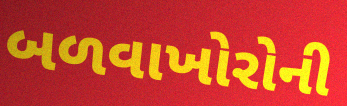
બળવાખોરોની